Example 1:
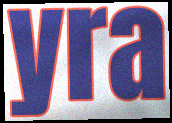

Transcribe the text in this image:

yra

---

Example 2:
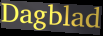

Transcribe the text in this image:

Dagblad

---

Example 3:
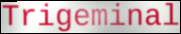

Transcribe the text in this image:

Trigeminal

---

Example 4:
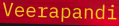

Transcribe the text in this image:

Veerapandi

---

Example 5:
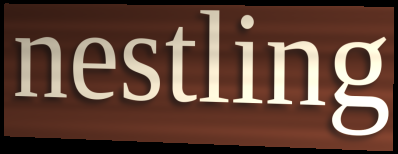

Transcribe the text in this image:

nestling